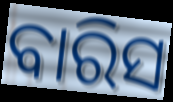
ବାରିସ